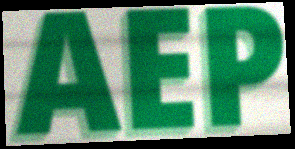
AEP